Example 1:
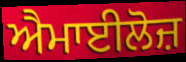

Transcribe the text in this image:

ਐਮਾਈਲੋਜ਼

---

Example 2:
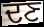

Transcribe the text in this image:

ਦਣ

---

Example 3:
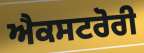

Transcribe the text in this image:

ਐਕਸਟਰੋਰੀ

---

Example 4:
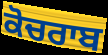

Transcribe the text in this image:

ਕੋਚਰਾਬ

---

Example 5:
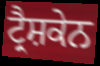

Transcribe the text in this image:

ਟ੍ਰੈਸ਼ਕੇਨ